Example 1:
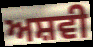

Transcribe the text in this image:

ਅਸ਼ਵੀ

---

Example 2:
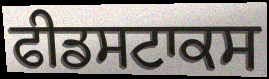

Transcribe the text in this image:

ਫੀਡਸਟਾਕਸ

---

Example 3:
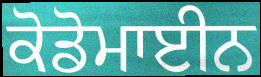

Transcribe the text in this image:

ਕੋਡੋਮਾਈਨ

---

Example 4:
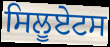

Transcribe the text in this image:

ਸਿਲੂਏਟਸ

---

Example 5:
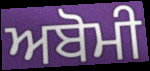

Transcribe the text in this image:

ਅਬੋਮੀ